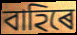
বাহিৰে